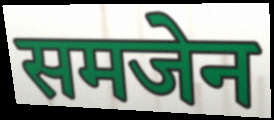
समजेन